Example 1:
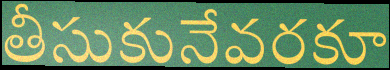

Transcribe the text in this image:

తీసుకునేవరకూ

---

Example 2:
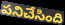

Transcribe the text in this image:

పనిచేసింది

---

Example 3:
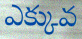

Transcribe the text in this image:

ఎక్కువ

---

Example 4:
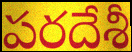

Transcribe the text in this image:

పరదేశీ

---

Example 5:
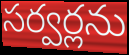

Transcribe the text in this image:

సర్వర్లను